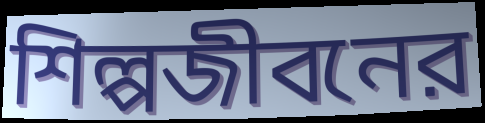
শিল্পজীবনের